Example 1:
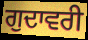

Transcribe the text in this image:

ਗੁਦਾਵਰੀ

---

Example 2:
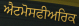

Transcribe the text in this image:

ਐਟਮੋਸਫੀਅਰਿਕ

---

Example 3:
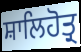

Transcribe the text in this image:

ਸ਼ਾਲਿਹੋਤ੍ਰ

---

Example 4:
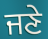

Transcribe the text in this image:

ਜਣੇ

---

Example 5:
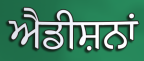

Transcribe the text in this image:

ਐਡੀਸ਼ਨਾਂ